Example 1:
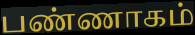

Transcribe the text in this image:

பண்ணாகம்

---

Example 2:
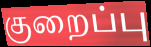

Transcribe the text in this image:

குறைப்பு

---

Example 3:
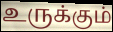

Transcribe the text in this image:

உருக்கும்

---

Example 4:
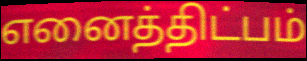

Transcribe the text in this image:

எனைத்திட்பம்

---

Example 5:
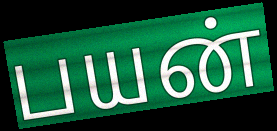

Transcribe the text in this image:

பயன்